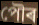
পৌৰ